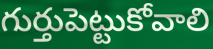
గుర్తుపెట్టుకోవాలి